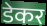
डेकर